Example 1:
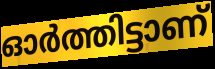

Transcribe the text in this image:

ഓർത്തിട്ടാണ്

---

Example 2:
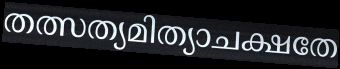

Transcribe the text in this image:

തത്സത്യമിത്യാചക്ഷതേ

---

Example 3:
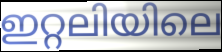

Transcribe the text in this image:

ഇറ്റലിയിലെ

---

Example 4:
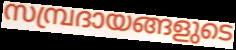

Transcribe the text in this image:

സമ്പ്രദായങ്ങളുടെ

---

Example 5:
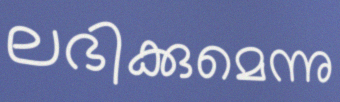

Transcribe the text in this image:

ലഭിക്കുമെന്നു